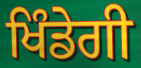
ਖਿੰਡੇਗੀ